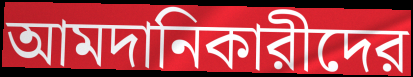
আমদানিকারীদের